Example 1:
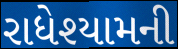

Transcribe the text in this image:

રાધેશ્યામની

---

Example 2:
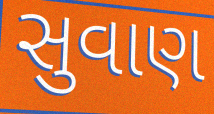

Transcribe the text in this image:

સુવાણ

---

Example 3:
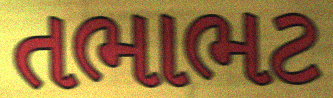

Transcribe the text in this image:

તભાભટ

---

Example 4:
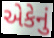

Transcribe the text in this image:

એકેનું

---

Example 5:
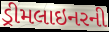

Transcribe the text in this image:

ડ્રીમલાઇનરની